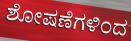
ಶೋಷಣೆಗಳಿಂದ